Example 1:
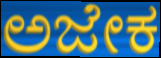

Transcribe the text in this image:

ಅಜೇಕ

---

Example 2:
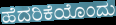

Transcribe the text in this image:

ಹೆದರಿಕೆಯೊಂದು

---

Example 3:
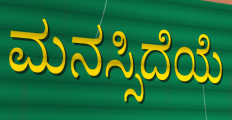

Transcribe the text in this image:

ಮನಸ್ಸಿದೆಯೆ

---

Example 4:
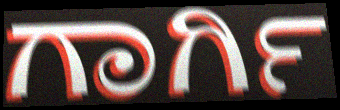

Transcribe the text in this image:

ಗಾರ್ಗಿ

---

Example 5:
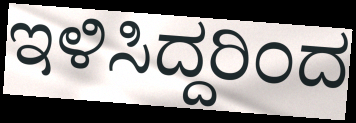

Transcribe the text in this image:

ಇಳಿಸಿದ್ದರಿಂದ